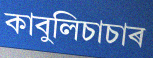
কাবুলিচাচাৰ